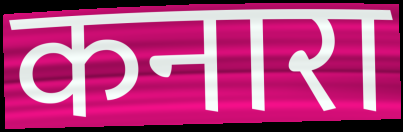
कनारा